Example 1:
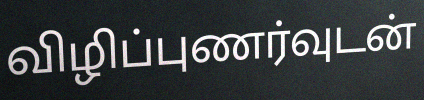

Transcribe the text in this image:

விழிப்புணர்வுடன்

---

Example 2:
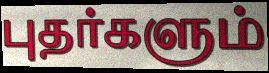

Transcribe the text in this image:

புதர்களும்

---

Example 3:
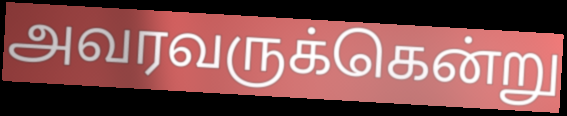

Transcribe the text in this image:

அவரவருக்கென்று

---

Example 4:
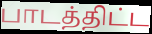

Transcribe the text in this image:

பாடத்திட்ட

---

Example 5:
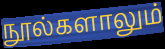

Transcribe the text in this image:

நூல்களாலும்